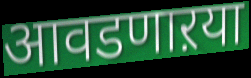
आवडणाऱया